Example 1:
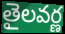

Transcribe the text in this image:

తైలవర్ణ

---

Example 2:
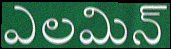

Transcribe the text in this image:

ఎలమిన్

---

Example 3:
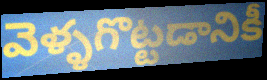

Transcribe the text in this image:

వెళ్ళగొట్టడానికీ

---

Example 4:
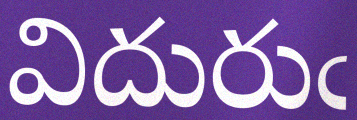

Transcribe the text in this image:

విదురుఁ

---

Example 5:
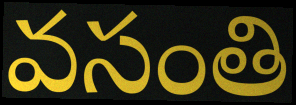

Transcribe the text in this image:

వసంతి